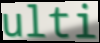
ulti